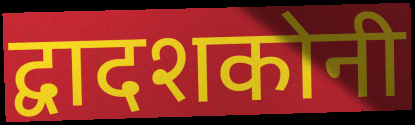
द्वादशकोनी